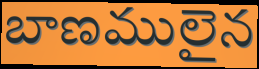
బాణములైన